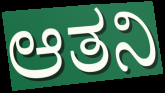
ಆತನಿ